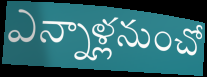
ఎన్నాళ్లనుంచో